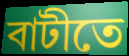
বাটীতে